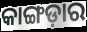
କାଙ୍ଗଡ଼ାର